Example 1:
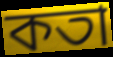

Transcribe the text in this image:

কতা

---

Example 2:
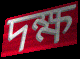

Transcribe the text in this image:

দক্ষ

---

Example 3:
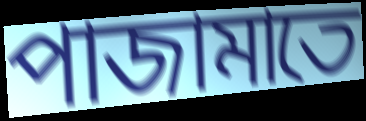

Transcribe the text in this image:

পাজামাতে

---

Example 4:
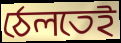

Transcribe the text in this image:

ঠেলতেই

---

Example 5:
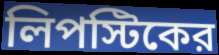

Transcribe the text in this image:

লিপস্টিকের